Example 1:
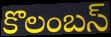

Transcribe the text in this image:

కొలంబస్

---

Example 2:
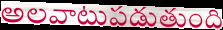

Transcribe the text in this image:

అలవాటుపడుతుంది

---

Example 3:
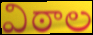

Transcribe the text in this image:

విఠాల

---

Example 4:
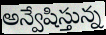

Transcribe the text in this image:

అన్వేషిస్తున్న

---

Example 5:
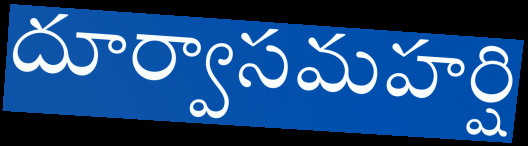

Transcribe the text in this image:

దూర్వాసమహర్షి